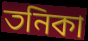
তনিকা